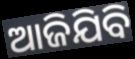
ଆଜିଯିବି